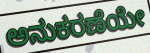
ಅನುಕರಣೆಯೇ